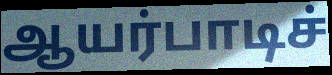
ஆயர்பாடிச்